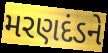
મરણદંડને